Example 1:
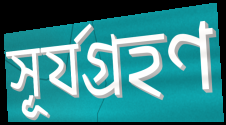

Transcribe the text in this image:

সূর্যগ্রহণ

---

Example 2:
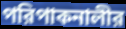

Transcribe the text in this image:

পরিপাকনালীর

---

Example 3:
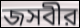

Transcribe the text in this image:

জসবীর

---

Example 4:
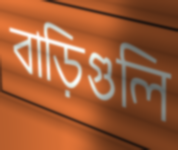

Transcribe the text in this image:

বাড়িগুলি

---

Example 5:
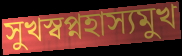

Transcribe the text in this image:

সুখস্বপ্নহাস্যমুখ